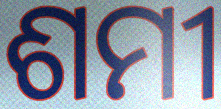
ଶମୀ